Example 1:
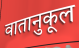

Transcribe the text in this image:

वातानुकूल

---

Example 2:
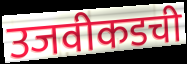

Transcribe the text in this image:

उजवीकडची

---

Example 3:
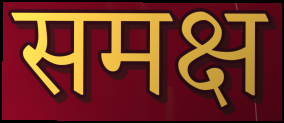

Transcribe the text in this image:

समक्ष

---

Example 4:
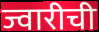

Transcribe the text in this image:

ज्वारीची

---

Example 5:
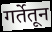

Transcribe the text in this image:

गर्तेतून